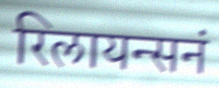
रिलायन्सनं